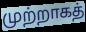
முற்றாகத்